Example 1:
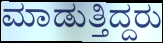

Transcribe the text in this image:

ಮಾಡುತ್ತಿದ್ದರು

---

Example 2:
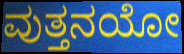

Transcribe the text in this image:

ವುತ್ತನಯೋ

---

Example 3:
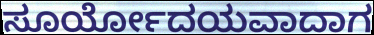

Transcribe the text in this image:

ಸೂರ್ಯೋದಯವಾದಾಗ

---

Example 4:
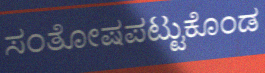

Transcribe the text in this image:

ಸಂತೋಷಪಟ್ಟುಕೊಂಡ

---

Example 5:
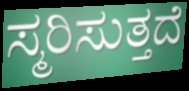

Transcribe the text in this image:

ಸ್ಮರಿಸುತ್ತದೆ